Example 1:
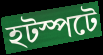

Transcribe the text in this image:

হটস্পটে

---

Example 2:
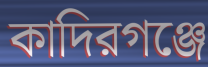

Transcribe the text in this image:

কাদিরগঞ্জে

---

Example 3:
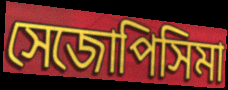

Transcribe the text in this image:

সেজোপিসিমা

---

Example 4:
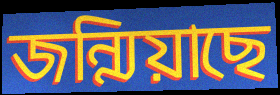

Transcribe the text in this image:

জন্মিয়াছে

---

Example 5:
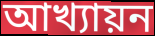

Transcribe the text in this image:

আখ্যায়ন